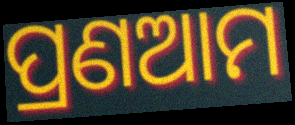
ପ୍ରଣଆମ